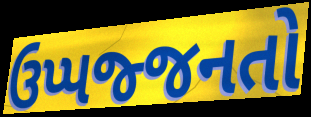
ઉપ્પજ્જનતો